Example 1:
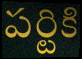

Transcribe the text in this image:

పర్టికి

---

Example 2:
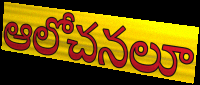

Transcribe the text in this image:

ఆలోచనలూ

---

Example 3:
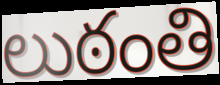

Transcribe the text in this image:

లుఠంతి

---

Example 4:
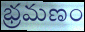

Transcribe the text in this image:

భ్రమణం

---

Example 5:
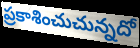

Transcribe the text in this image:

ప్రకాశించుచున్నదో